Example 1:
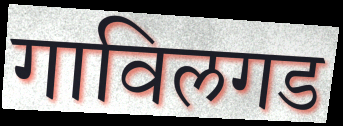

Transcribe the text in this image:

गाविलगड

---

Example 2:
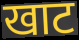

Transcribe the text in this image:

खाट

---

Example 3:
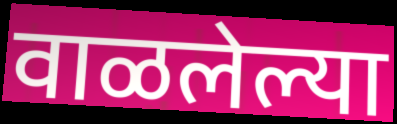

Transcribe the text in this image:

वाळलेल्या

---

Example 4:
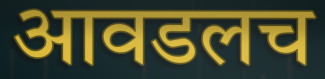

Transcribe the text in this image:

आवडलच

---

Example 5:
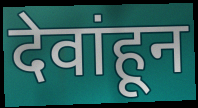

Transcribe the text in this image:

देवांहून